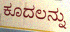
ಕೂದಲನ್ನು